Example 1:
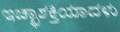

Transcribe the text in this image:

ಇಚ್ಛಾಶಕ್ತಿಯಾದಳು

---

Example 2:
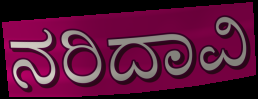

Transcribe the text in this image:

ನರಿದಾವಿ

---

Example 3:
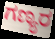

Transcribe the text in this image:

ಗಣ್ಯರ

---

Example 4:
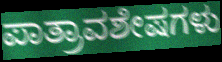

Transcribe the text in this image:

ಪಾತ್ರಾವಶೇಷಗಳು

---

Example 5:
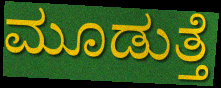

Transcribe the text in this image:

ಮೂಡುತ್ತೆ